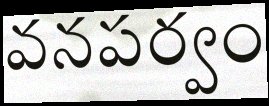
వనపర్వం